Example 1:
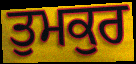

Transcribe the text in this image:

ਤੁਮਕੁਰ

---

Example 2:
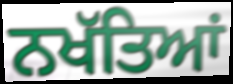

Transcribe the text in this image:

ਨਖੱਤਿਆਂ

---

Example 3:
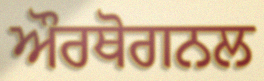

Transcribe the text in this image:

ਔਰਥੋਗਨਲ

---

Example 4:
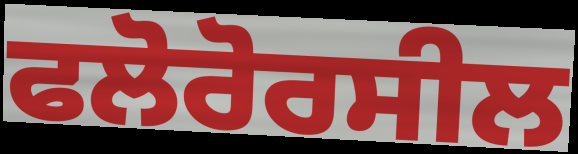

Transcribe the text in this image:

ਫਲੋਰੋਰਸੀਲ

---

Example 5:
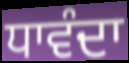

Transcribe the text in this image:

ਧਾਵੰਦਾ